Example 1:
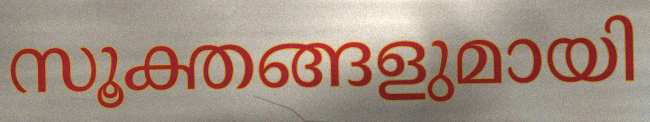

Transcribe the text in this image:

സൂക്തങ്ങളുമായി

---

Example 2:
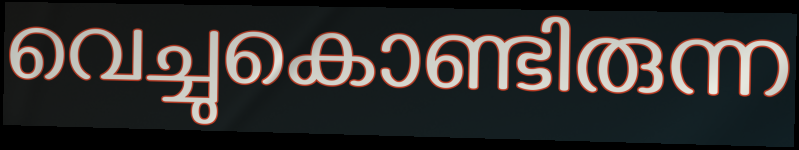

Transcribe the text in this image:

വെച്ചുകൊണ്ടിരുന്ന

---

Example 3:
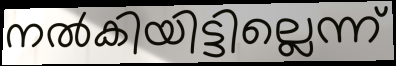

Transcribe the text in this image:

നൽകിയിട്ടില്ലെന്ന്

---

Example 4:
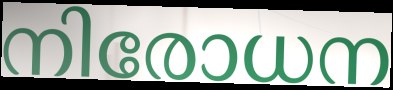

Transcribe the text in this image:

നിരോധന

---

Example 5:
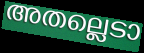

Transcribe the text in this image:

അതല്ലെടാ